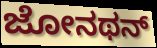
ಜೋನಥನ್